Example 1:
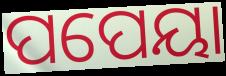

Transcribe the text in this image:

ପପେୟା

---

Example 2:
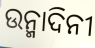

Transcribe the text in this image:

ଉନ୍ମାଦିନୀ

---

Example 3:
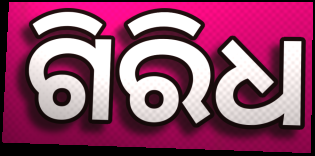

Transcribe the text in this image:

ଗିରିଧ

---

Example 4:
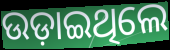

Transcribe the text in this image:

ଉଡ଼ାଇଥିଲେ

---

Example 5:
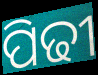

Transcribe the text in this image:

ପିଢୀ